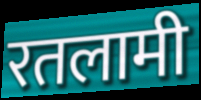
रतलामी